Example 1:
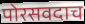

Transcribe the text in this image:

पोरसवदाच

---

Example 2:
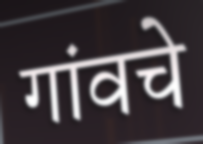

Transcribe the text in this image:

गांवचे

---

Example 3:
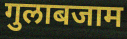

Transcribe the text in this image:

गुलाबजाम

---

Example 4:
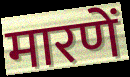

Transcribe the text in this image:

मारणें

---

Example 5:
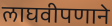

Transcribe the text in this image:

लाघवीपणाने